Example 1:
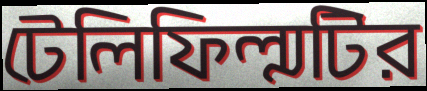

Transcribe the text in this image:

টেলিফিল্মটির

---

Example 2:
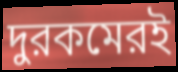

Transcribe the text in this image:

দুরকমেরই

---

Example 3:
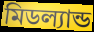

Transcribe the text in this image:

মিডল্যান্ড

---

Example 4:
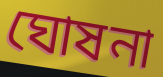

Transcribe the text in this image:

ঘোষনা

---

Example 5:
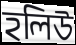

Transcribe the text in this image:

হলিউ